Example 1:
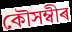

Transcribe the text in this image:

কৌসম্বীৰ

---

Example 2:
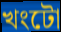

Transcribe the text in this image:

খংটো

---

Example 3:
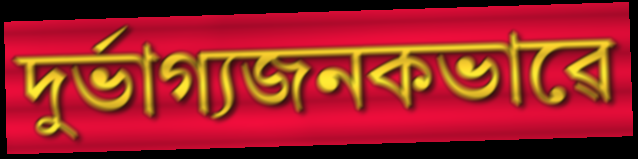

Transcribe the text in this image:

দুৰ্ভাগ্যজনকভাৱে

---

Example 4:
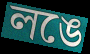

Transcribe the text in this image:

লঙে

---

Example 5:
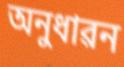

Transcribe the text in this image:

অনুধাৱন